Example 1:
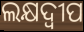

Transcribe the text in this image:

ଲକ୍ଷଦ୍ୱୀପ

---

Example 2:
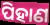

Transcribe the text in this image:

ପିହାଣ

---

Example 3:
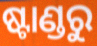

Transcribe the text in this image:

ଷ୍ଟାଣ୍ଡରୁ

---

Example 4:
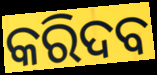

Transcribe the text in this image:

କରିଦବ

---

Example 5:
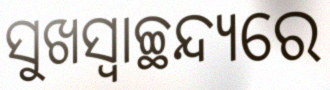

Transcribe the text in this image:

ସୁଖସ୍ଵାଚ୍ଛନ୍ଦ୍ୟରେ